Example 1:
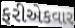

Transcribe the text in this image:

ફરીએકવાર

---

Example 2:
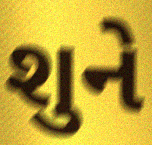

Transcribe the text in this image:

શુને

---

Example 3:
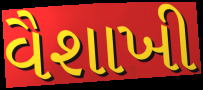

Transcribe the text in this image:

વૈશાખી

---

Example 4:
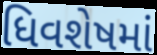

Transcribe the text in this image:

ધિવશેષમાં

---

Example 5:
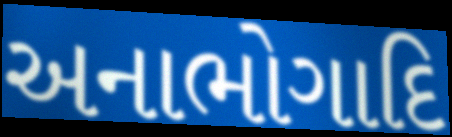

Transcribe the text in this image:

અનાભોગાદિ